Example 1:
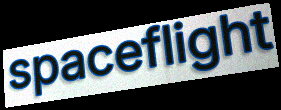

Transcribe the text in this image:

spaceflight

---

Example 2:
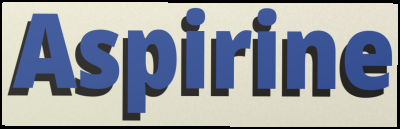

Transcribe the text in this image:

Aspirine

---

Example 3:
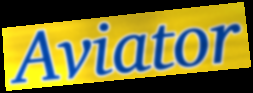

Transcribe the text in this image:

Aviator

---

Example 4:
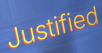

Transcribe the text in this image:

Justified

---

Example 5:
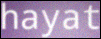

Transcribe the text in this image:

hayat